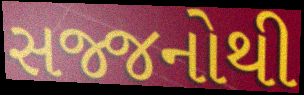
સજ્જનોથી